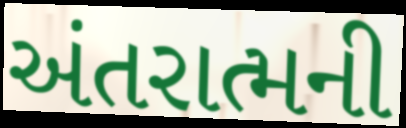
અંતરાત્મની